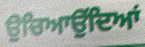
ਉਚਿਆਉਂਦਿਆਂ